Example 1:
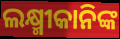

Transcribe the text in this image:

ଲକ୍ଷ୍ମୀକାନିଙ୍କ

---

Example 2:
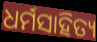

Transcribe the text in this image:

ଧର୍ମସାହିତ୍ୟ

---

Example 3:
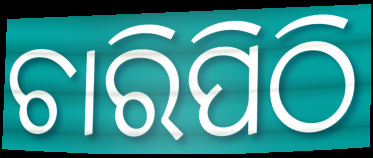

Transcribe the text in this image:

ଚାରିପିଠି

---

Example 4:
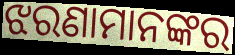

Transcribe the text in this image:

ଝରଣାମାନଙ୍କର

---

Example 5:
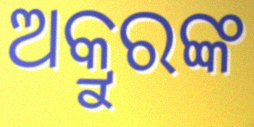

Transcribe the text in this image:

ଅକ୍ରୁରଙ୍କ